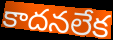
కాదనలేక